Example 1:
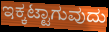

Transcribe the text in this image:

ಇಕ್ಕಟ್ಟಾಗುವುದು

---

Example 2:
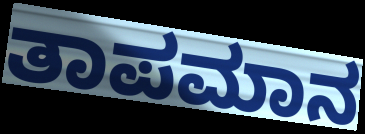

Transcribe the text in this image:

ತಾಪಮಾನ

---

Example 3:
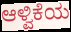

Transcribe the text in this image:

ಆಳ್ವಿಕೆಯ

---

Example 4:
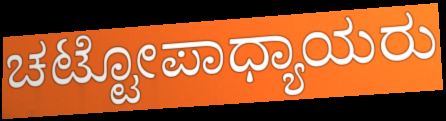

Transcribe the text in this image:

ಚಟ್ಟೋಪಾಧ್ಯಾಯರು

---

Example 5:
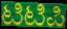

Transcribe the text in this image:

ಟಿಟಿಪಿ